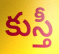
కుస్తీ